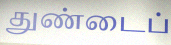
துண்டைப்